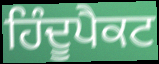
ਹਿੰਦੂਪੈਕਟ